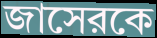
জাসেরকে